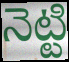
నెట్టి